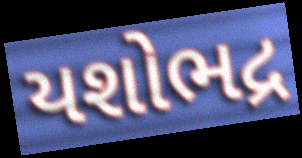
યશોભદ્ર